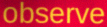
observe